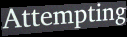
Attempting